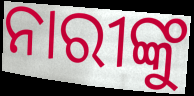
ନାରୀଙ୍କୁ